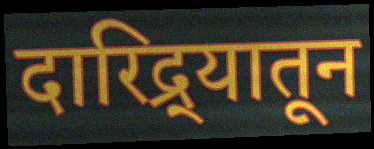
दारिद्र्यातून